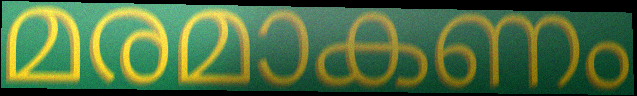
മരമാകണം